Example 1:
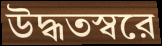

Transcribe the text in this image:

উদ্ধতস্বরে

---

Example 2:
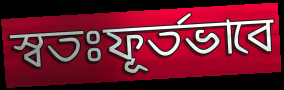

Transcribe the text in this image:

স্বতঃফূর্তভাবে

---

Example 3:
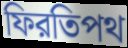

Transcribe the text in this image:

ফিরতিপথ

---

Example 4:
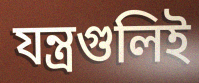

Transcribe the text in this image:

যন্ত্রগুলিই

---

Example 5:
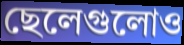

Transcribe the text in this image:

ছেলেগুলোও